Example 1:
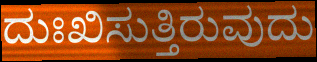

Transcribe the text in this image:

ದುಃಖಿಸುತ್ತಿರುವುದು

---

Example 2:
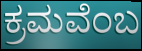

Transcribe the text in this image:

ಕ್ರಮವೆಂಬ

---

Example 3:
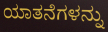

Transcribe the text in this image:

ಯಾತನೆಗಳನ್ನು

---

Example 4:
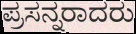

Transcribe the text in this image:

ಪ್ರಸನ್ನರಾದರು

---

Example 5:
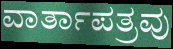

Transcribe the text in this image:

ವಾರ್ತಾಪತ್ರವು